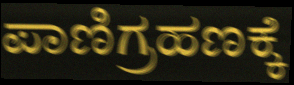
ಪಾಣಿಗ್ರಹಣಕ್ಕೆ